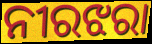
ନୀରଝରା